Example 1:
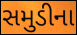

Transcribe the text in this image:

સમુડીના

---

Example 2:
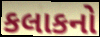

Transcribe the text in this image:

કલાકનો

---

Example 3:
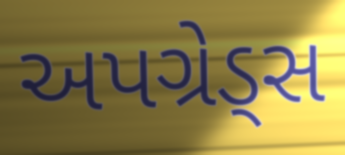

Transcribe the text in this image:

અપગ્રેડ્સ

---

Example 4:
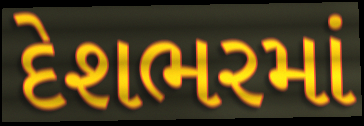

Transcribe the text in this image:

દેશભરમાં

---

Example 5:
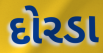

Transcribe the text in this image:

દોરડા